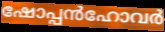
ഷോപ്പൻഹോവർ